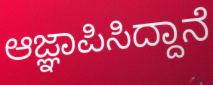
ಆಜ್ಞಾಪಿಸಿದ್ದಾನೆ